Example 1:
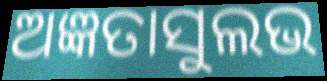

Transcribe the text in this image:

ଅଜ୍ଞତାସୁଲଭ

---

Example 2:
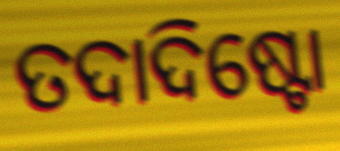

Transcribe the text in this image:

ତଦାଦିଷ୍ଟୋ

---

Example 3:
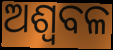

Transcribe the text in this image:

ଅଶ୍ୱବଳ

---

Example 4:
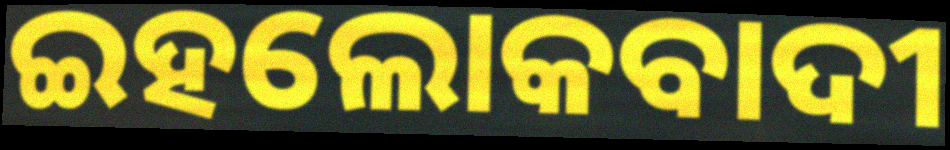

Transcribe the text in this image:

ଇହଲୋକବାଦୀ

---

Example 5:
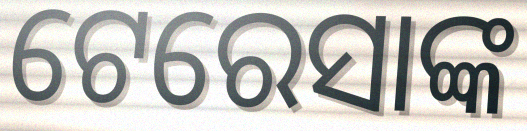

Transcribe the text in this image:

ଟେରେସାଙ୍କ